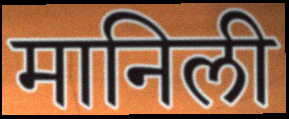
मानिली